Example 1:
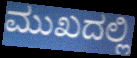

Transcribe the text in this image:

ಮುಖದಲ್ಲಿ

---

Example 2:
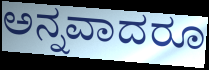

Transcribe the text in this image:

ಅನ್ನವಾದರೂ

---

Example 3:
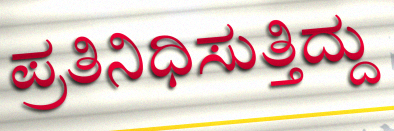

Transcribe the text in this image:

ಪ್ರತಿನಿಧಿಸುತ್ತಿದ್ದು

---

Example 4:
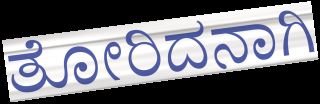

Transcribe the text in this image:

ತೋರಿದನಾಗಿ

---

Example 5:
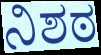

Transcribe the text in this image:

ನಿಶಠ